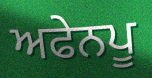
ਅਫੇਨਪੂ